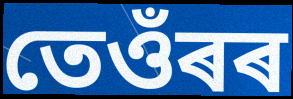
তেওঁৰৰ